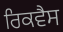
ਰਿਕਵੈਸ